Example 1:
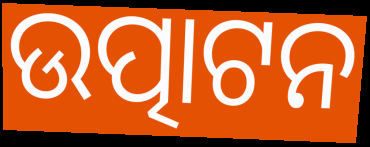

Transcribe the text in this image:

ଉତ୍ପାଟନ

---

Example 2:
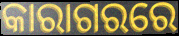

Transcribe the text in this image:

କାରାଗରରେ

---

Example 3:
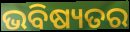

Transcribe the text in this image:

ଭବିଷ୍ୟତର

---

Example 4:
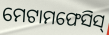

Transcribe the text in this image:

ମେଟାମଫେସିସ୍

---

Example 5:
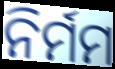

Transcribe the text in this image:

ନିର୍ମମ